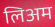
लिअम